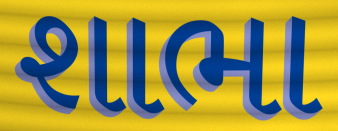
શાભા